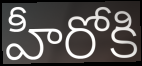
హీరోకి